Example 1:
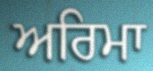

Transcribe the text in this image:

ਅਰਿਮਾ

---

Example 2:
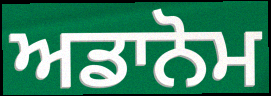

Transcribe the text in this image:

ਅਡਾਨੋਮ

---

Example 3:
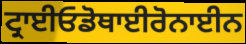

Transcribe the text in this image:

ਟ੍ਰਾਈਓਡੋਥਾਈਰੋਨਾਈਨ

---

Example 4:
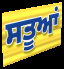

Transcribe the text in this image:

ਸਤੂਆਂ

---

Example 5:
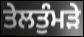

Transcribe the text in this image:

ਤੇਲਤੁੰਮੜੇ